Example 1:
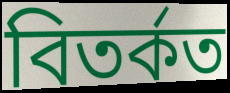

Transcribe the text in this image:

বিতৰ্কত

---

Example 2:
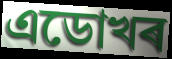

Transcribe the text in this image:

এডোখৰ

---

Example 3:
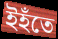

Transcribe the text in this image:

ইহঁতে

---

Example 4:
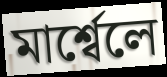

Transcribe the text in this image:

মাৰ্শ্বেলে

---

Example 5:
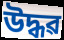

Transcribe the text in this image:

উদ্ধৱ